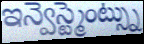
ఇన్వెస్ట్మెంట్స్ను